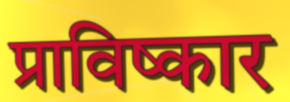
प्राविष्कार